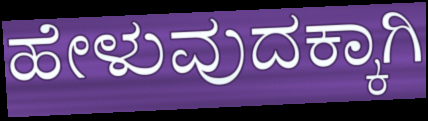
ಹೇಳುವುದಕ್ಕಾಗಿ